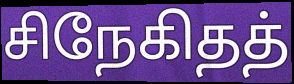
சிநேகிதத்